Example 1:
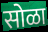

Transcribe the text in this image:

सोळा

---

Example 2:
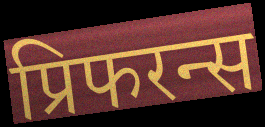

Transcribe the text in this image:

प्रिफरन्स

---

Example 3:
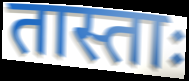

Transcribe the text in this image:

तास्ताः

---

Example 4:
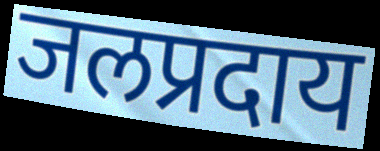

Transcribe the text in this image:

जलप्रदाय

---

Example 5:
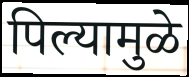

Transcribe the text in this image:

पिल्यामुळे